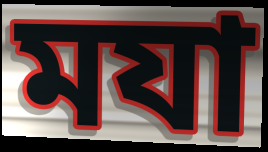
মযা